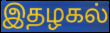
இதழகல்